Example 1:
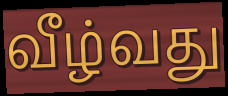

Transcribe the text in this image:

வீழ்வது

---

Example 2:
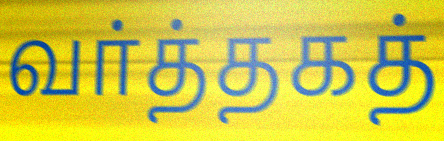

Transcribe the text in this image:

வர்த்தகத்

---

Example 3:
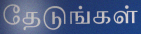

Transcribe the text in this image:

தேடுங்கள்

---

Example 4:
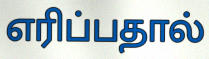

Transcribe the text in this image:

எரிப்பதால்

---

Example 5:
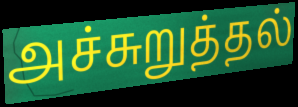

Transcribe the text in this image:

அச்சுறுத்தல்